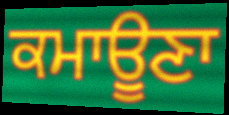
ਕਮਾਊਣਾ